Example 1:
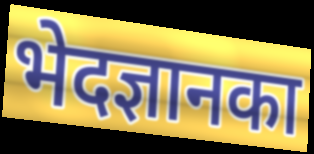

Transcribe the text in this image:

भेदज्ञानका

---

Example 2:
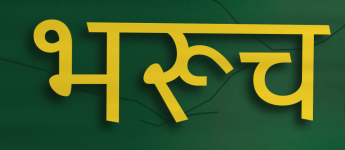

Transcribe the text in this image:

भरूच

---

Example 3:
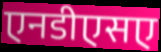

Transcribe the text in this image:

एनडीएसए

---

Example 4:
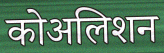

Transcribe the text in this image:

कोअलिशन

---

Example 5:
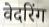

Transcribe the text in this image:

वेदरिंग